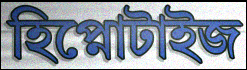
হিপ্নোটাইজ